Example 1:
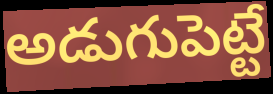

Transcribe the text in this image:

అడుగుపెట్టే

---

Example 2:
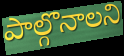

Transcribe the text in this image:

పాల్గొనాలని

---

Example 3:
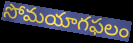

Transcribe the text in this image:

సోమయాగఫలం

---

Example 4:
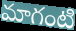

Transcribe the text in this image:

మాగంటి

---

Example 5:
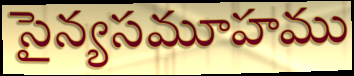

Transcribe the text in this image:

సైన్యసమూహము